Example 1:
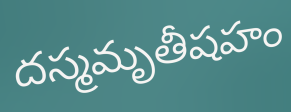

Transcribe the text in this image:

దస్మమృతీషహం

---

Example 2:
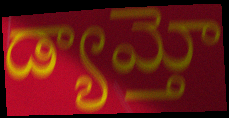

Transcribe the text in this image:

డ్యామ్తో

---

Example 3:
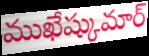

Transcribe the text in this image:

ముఖేష్కుమార్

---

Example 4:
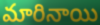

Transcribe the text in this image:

మారినాయి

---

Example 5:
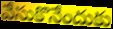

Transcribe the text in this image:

వేసుకొనేందుకు